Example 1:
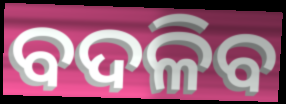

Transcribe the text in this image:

ବଦଳିବ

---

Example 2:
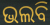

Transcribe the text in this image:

ଭଲବି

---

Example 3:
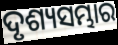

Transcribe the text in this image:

ଦୃଶ୍ୟସମ୍ଭାର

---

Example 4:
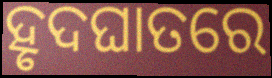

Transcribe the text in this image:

ହୃଦଘାତରେ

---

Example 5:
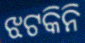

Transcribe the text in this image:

ଝଟକିନି